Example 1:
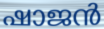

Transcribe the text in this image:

ഷാജൻ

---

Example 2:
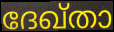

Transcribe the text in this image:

ദേഖ്താ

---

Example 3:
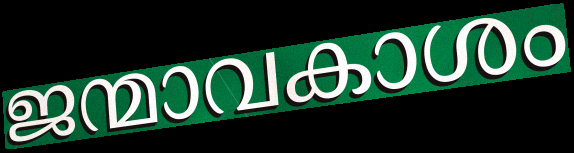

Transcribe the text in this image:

ജന്മാവകാശം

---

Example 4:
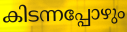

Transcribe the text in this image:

കിടന്നപ്പോഴും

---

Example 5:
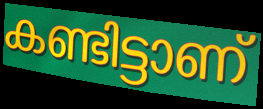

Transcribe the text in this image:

കണ്ടിട്ടാണ്